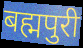
बह्मपुरी